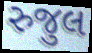
રુજુલ